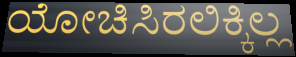
ಯೋಚಿಸಿರಲಿಕ್ಕಿಲ್ಲ